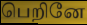
பெறினே